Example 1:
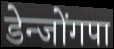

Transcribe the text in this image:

डेन्जोंगपा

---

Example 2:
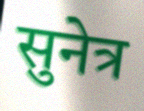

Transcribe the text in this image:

सुनेत्र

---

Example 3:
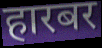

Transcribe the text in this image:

हारबर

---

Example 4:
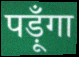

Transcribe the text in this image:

पड़ूँगा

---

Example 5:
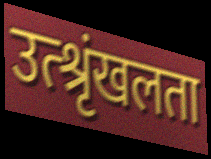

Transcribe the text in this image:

उत्श्रृंखलता